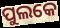
ପୁଲକେ